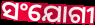
ସଂଯୋଗୀ